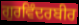
ਗੁਰਵਿੰਦਰਬੀਰ